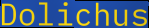
Dolichus